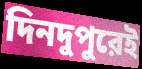
দিনদুপুরেই